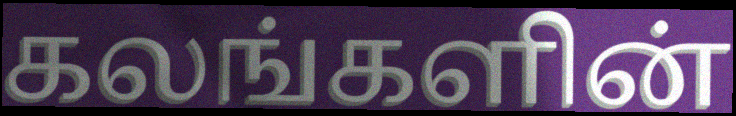
கலங்களின்